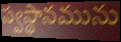
స్వస్థానమును